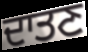
ਦਾਤਣ